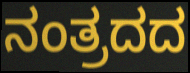
ನಂತ್ರದದ